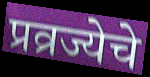
प्रव्रज्येचे